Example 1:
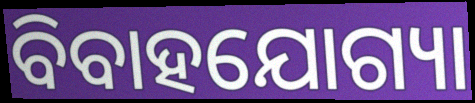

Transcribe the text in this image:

ବିବାହଯୋଗ୍ୟା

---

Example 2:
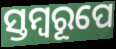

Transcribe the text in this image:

ସ୍ତମ୍ବରୂପେ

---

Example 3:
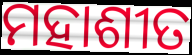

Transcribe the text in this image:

ମହାଶୀତ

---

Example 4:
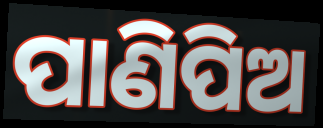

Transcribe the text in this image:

ପାଣିପିଅ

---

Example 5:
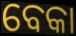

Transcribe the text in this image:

ବେକା